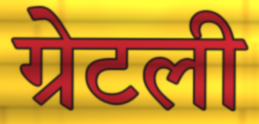
ग्रेटली